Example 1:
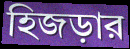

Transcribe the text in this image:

হিজড়ার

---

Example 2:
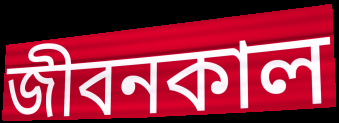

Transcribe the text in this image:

জীবনকাল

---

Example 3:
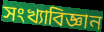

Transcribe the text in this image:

সংখ্যাবিজ্ঞান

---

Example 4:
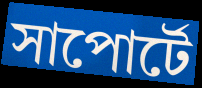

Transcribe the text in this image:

সাপোর্টে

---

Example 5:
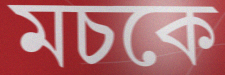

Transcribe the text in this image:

মচকে